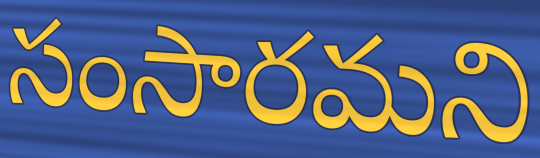
సంసారమని